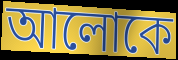
আলোকে